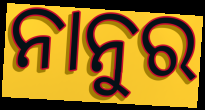
ନାନୁର